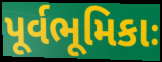
પૂર્વભૂમિકાઃ